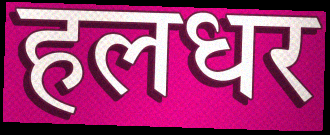
हलधर